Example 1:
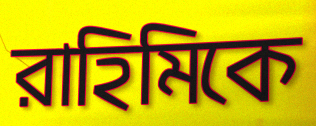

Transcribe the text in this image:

রাহিমিকে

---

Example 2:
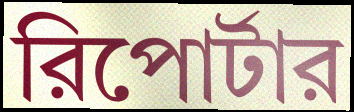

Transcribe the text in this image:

রিপোর্টার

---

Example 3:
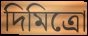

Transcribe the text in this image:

দিমিত্রো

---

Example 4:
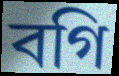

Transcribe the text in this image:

বগি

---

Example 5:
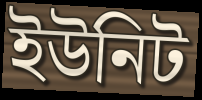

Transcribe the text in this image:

ইউনিট